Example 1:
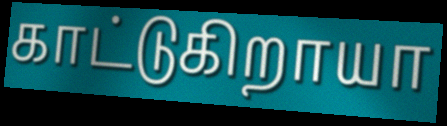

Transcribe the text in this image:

காட்டுகிறாயா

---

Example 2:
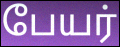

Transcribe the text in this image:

பேயர்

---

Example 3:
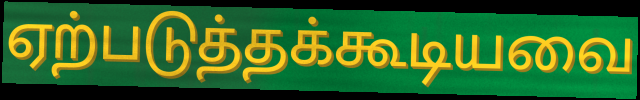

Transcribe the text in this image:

ஏற்படுத்தக்கூடியவை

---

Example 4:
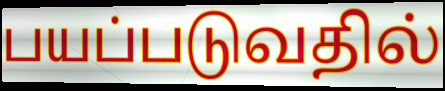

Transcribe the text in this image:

பயப்படுவதில்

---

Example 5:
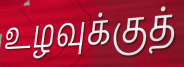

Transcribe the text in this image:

உழவுக்குத்